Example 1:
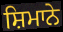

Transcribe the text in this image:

ਸ਼ਿਮਾਨੇ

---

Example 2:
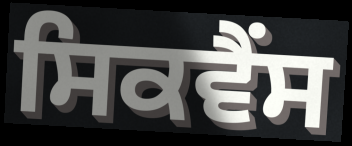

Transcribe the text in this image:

ਸਿਕਵੈਂਸ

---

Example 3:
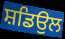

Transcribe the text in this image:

ਸ਼ਡਿਉਲ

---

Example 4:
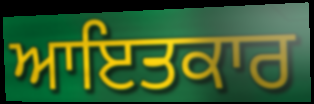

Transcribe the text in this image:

ਆਇਤਕਾਰ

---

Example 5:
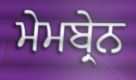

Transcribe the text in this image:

ਮੇਮਬ੍ਰੇਨ